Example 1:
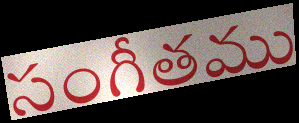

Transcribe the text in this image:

సంగీతము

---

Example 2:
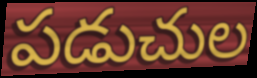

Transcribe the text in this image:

పడుచుల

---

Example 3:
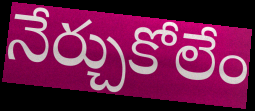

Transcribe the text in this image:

నేర్చుకోలేం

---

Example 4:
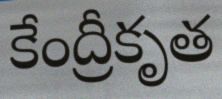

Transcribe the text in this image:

కేంద్రీకృత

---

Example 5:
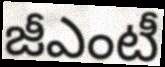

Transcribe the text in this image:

జీఎంటీ